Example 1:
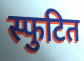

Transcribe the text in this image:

स्फुटित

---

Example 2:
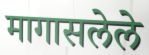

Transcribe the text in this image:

मागासलेले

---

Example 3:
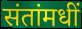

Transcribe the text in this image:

संतांमधीं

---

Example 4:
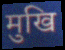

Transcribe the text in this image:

मुखि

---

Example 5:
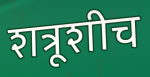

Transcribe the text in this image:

शत्रूशीच